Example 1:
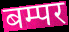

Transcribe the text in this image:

बम्पर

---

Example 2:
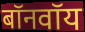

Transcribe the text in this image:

बॉनवॉय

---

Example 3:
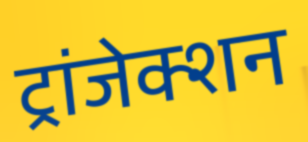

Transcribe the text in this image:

ट्रांजेक्शन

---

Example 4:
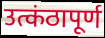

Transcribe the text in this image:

उत्कंठापूर्ण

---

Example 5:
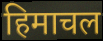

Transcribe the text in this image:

हिमाचल